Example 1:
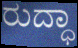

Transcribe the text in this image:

ರುದ್ಧಾ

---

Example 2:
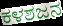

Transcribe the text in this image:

ಕಳಶಜನ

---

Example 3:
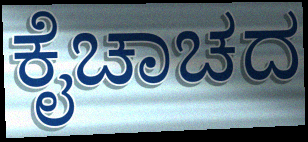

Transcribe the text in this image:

ಕೈಚಾಚದ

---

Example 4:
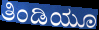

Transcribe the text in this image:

ತಿಂಡಿಯೂ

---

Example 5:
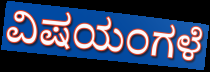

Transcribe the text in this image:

ವಿಷಯಂಗಳೆ